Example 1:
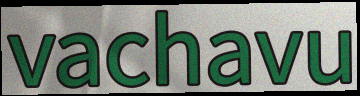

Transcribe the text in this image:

vachavu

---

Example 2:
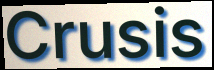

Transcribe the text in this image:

Crusis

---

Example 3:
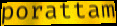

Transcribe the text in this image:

porattam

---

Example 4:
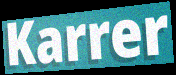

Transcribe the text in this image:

Karrer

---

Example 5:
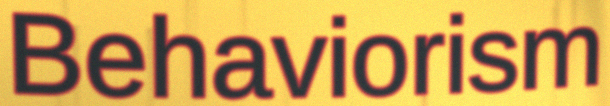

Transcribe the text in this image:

Behaviorism